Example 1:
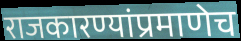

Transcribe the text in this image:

राजकारण्यांप्रमाणेच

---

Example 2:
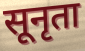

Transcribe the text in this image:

सूनृता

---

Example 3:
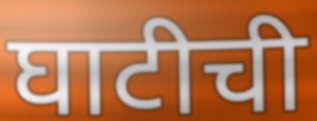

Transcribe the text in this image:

घाटीची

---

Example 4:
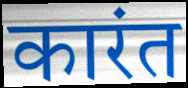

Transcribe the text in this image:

कारंत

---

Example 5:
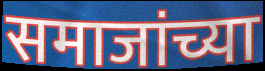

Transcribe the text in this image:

समाजांच्या